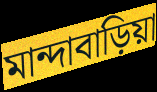
মান্দাবাড়িয়া